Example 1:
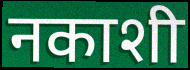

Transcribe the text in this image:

नकाशी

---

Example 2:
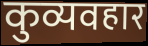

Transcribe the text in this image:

कुव्यवहार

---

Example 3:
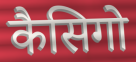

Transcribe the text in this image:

कैसिगो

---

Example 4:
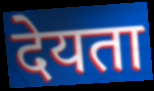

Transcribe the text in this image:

देयता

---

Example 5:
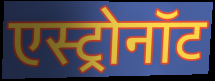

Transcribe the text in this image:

एस्ट्रोनॉट